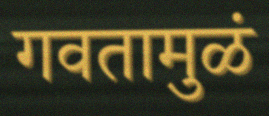
गवतामुळं